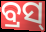
ବ୍ରସ୍